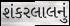
શંકરલાલનું